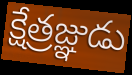
క్షేత్రజ్ఞుడు